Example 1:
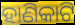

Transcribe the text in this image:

ହାଣିକାଟି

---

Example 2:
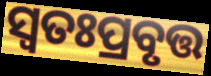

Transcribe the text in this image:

ସ୍ବତଃପ୍ରବୃତ୍ତ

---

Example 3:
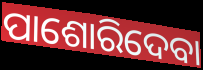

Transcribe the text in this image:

ପାଶୋରିଦେବା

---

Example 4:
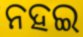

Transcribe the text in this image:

ନହଇ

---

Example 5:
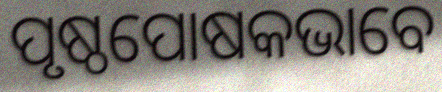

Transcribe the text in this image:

ପୃଷ୍ଠପୋଷକଭାବେ